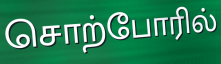
சொற்போரில்